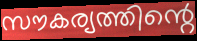
സൗകര്യത്തിന്റെ